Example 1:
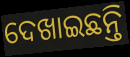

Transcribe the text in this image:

ଦେଖାଇଛନ୍ତି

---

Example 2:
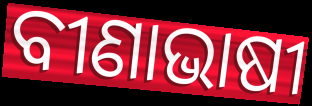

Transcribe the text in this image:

ବୀଣାଭାଷୀ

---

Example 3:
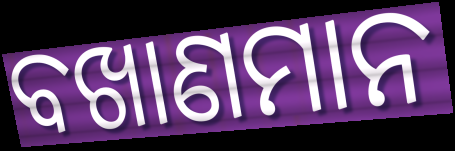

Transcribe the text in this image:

ବଖାଣମାନ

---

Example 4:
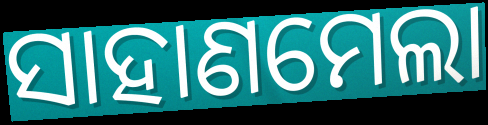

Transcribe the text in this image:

ସାହାଣମେଲା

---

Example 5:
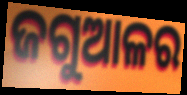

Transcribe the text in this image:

ଜଗୁଆଳର